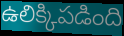
ఉలిక్కిపడింది